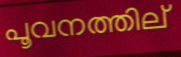
പൂവനത്തില്